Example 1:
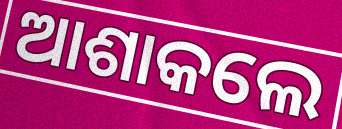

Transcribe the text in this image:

ଆଶାକଲେ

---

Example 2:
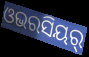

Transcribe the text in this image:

ଓଭରସିୟର୍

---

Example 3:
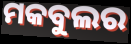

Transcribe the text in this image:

ମକବୁଲର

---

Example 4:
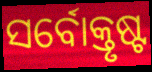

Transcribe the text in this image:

ସର୍ବୋକ୍ତୃଷ୍ଟ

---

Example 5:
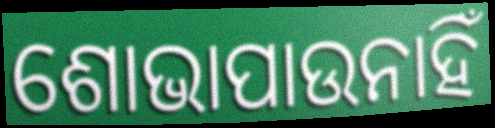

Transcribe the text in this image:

ଶୋଭାପାଉନାହିଁ